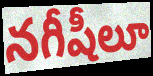
నగీషీలూ